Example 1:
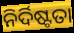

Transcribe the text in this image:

ନିର୍ଦିଷ୍ଟତା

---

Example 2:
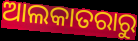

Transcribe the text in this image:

ଆଲକାତରାରୁ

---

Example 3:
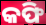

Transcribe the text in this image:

କଫି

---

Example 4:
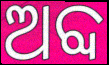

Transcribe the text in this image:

ଅବ୍ଦ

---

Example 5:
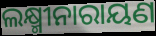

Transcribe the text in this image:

ଲକ୍ଷ୍ମୀନାରାୟଣ